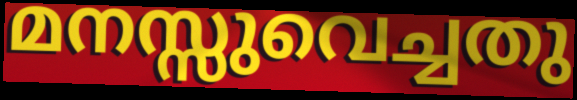
മനസ്സുവെച്ചതു